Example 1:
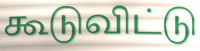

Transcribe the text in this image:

கூடுவிட்டு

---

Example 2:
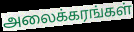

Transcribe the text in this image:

அலைக்கரங்கள்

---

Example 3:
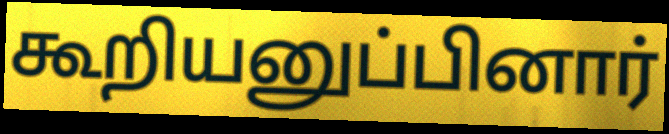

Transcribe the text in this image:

கூறியனுப்பினார்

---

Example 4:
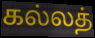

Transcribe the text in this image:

கல்லத்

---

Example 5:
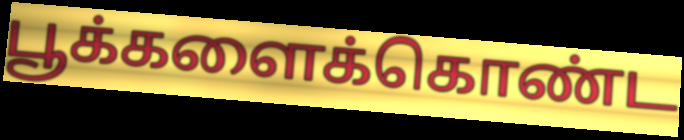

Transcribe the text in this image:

பூக்களைக்கொண்ட